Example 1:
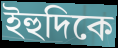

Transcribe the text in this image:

ইহুদিকে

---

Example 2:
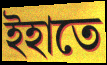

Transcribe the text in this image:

ইহাতে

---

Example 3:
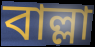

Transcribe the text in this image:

বাল্লা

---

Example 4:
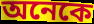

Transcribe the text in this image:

অনেকে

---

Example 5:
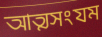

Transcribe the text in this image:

আত্মসংযম